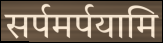
सर्पमर्पयामि